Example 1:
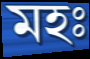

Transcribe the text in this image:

মহঃ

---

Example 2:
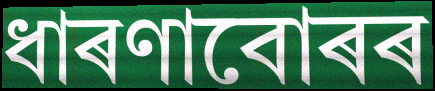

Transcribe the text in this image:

ধাৰণাবোৰৰ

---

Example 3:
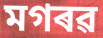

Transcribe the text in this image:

মগৰৱ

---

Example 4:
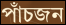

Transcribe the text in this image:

পাঁচজন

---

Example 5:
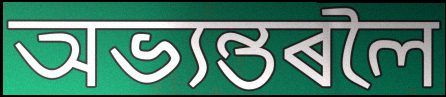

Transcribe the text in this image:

অভ্যন্তৰলৈ